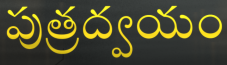
పుత్రద్వయం